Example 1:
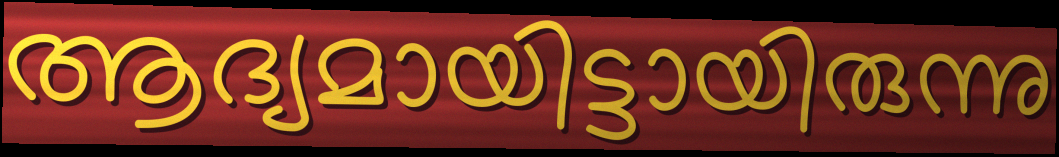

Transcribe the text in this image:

ആദ്യമായിട്ടായിരുന്നു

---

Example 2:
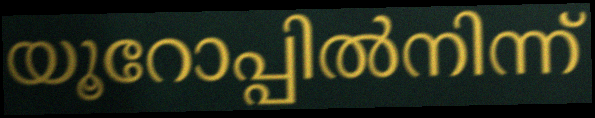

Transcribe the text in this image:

യൂറോപ്പിൽനിന്ന്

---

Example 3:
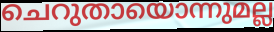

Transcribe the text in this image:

ചെറുതായൊന്നുമല്ല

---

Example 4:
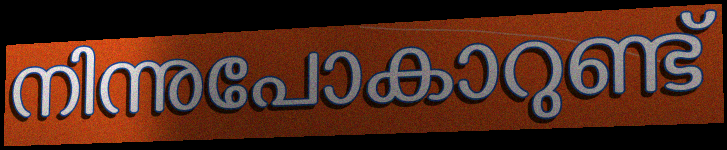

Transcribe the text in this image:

നിന്നുപോകാറുണ്ട്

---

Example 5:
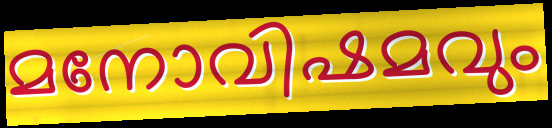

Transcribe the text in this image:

മനോവിഷമവും